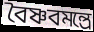
বৈষ্ণবমন্ত্রে